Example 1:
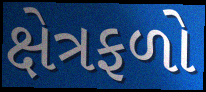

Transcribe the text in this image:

ક્ષેત્રફળો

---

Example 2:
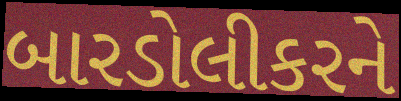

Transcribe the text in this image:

બારડોલીકરને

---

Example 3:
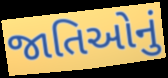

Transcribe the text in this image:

જાતિઓનું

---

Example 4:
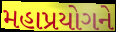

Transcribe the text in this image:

મહાપ્રયોગને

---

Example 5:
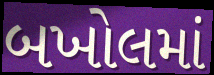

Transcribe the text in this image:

બખોલમાં